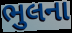
ભુલના